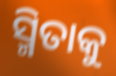
ସ୍ମିତାକୁ